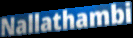
Nallathambi